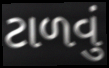
ટાળવું